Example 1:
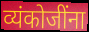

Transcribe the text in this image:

व्यंकोजींना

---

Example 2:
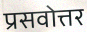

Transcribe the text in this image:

प्रसवोत्तर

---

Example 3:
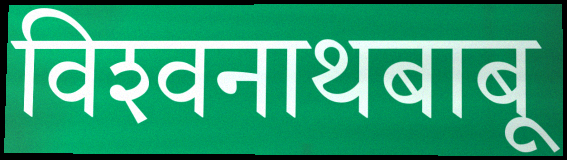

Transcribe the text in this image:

विश्‍वनाथबाबू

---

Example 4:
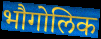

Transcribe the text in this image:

भौगोलिक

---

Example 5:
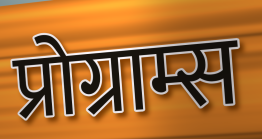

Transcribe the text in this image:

प्रोग्राम्स